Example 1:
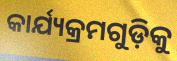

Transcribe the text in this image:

କାର୍ଯ୍ୟକ୍ରମଗୁଡ଼ିକୁ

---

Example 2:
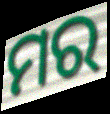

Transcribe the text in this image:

ମର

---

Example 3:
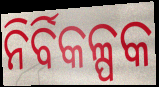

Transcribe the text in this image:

ନିର୍ବିକଳ୍ପକ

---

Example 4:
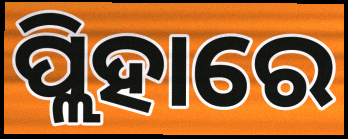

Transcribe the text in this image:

ପ୍ଲିହାରେ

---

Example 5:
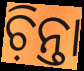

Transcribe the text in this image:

ଚ଼ିନ୍ତା